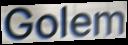
Golem